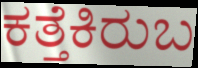
ಕತ್ತೆಕಿರುಬ